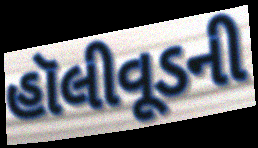
હૉલીવૂડની